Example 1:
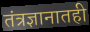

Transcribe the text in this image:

तंत्रज्ञानातही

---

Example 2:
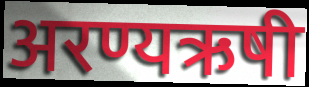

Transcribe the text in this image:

अरण्यऋषी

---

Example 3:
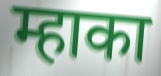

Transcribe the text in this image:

म्हाका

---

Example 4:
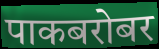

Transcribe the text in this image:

पाकबरोबर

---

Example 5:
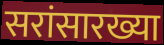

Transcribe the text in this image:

सरांसारख्या